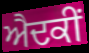
ਐਦਕੀਂ